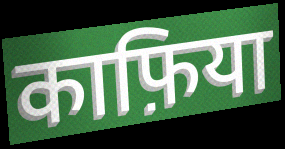
काफ़िया